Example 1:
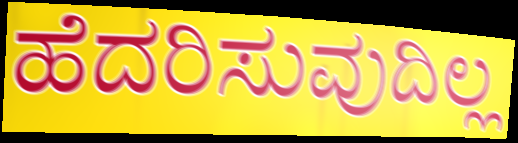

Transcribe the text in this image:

ಹೆದರಿಸುವುದಿಲ್ಲ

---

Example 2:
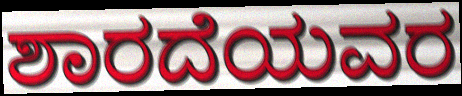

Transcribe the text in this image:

ಶಾರದೆಯವರ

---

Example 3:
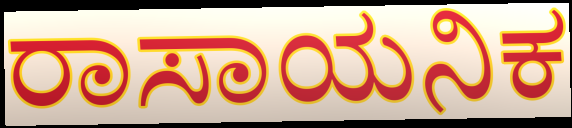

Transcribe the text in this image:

ರಾಸಾಯನಿಕ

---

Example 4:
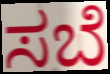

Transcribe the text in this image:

ಸಬೆ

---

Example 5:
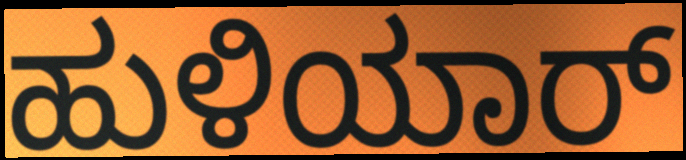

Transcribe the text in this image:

ಹುಳಿಯಾರ್